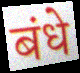
बंधे